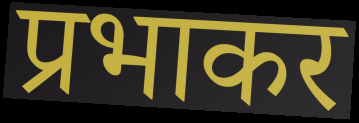
प्रभाकर